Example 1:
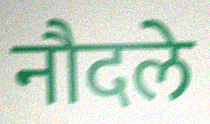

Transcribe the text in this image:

नौदले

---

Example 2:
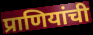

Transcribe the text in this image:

प्राणियांची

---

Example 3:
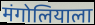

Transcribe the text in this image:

मंगोलियाला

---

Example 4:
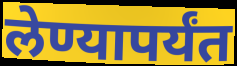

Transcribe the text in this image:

लेण्यापर्यंत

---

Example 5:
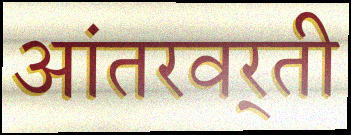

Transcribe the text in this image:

आंतरवर्ती